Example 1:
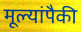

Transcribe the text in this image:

मूल्यांपैकी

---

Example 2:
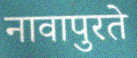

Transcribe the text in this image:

नावापुरते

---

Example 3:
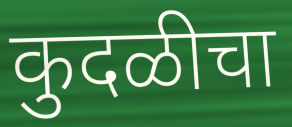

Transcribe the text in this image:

कुदळीचा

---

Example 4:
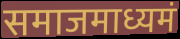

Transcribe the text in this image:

समाजमाध्यमं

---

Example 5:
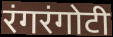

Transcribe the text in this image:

रंगरंगोटी